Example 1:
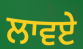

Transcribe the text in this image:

ਲਾਵਏ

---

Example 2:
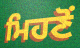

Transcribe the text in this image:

ਮਿਹਣੋਂ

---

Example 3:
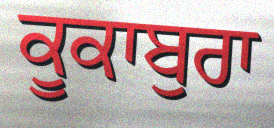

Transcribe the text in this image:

ਕੂਕਾਬੁਰਾ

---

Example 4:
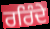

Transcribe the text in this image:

ਰਰਿੰਦੇ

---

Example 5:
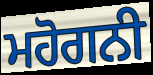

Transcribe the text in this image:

ਮਹੋਗਨੀ